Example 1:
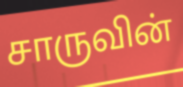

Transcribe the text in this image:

சாருவின்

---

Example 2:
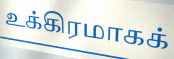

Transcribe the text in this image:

உக்கிரமாகக்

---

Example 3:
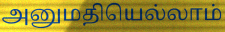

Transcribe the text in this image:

அனுமதியெல்லாம்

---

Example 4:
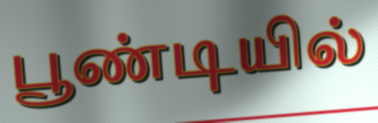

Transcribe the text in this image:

பூண்டியில்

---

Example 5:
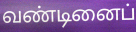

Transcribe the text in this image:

வண்டினைப்